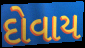
દોવાય